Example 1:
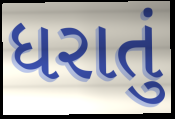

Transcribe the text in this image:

ધરાતું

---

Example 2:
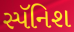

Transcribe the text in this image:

સ્પૅનિશ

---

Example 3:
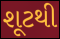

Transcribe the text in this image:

શૂટથી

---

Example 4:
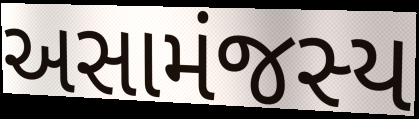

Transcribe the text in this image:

અસામંજસ્ય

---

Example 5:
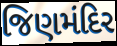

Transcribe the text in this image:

જિણમંદિર